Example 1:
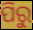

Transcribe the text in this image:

ପିରୁ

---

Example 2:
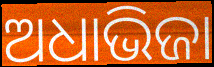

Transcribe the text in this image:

ଅଧାଭିଜା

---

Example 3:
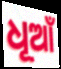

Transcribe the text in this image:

ଧୂଆଁ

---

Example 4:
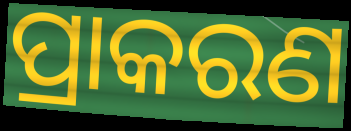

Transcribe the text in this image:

ପ୍ରାକରଣ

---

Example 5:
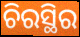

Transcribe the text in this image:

ଚିରସ୍ଥିର